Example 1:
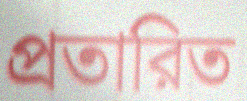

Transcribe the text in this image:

প্রতারিত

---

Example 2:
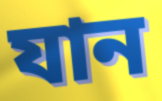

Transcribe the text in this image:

যান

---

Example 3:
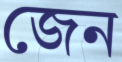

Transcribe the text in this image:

জেন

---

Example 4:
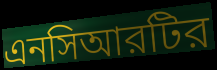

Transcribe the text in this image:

এনসিআরটির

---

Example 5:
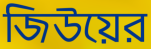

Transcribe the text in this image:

জিউয়ের